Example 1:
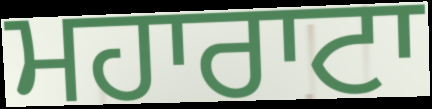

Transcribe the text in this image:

ਮਹਾਰਾਟਾ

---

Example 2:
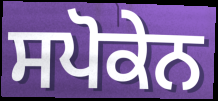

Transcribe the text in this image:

ਸਪੋਕੇਨ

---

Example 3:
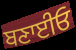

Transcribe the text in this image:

ਬਣਾਈਓ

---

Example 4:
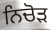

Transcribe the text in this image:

ਨਿਚੋੜ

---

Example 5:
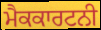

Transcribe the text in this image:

ਮੈਕਕਾਰਟਨੀ